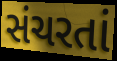
સંચરતાં